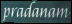
pradanam